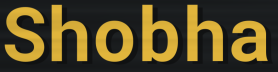
Shobha